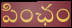
పింఛం